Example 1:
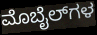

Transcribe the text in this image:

ಮೊಬೈಲ್‌ಗಳ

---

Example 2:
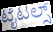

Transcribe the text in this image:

ಟೈಟಲ್ಸ್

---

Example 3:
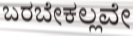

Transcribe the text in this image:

ಬರಬೇಕಲ್ಲವೇ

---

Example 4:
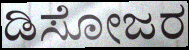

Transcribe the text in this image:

ಡಿಸೋಜರ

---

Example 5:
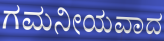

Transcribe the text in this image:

ಗಮನೀಯವಾದ